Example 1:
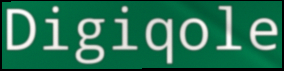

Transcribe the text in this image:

Digiqole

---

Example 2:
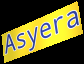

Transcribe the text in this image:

Asyera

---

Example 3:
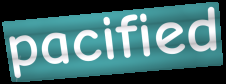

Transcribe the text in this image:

pacified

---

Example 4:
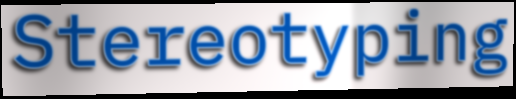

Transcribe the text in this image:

Stereotyping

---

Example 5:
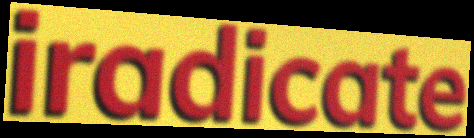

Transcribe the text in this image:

iradicate